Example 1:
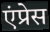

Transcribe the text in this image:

एंप्रेस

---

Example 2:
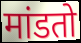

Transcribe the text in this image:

मांडतो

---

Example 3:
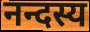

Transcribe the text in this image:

नन्दस्य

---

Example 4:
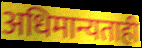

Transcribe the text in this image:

अधिमान्यताही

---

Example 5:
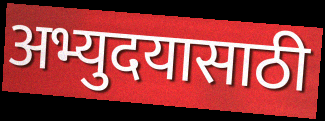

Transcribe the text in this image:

अभ्युदयासाठी